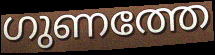
ഗുണത്തേ